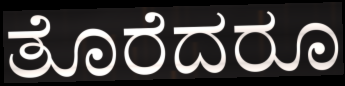
ತೊರೆದರೂ